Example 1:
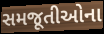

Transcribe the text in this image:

સમજૂતીઓના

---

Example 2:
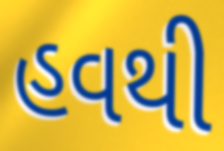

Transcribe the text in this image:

હવથી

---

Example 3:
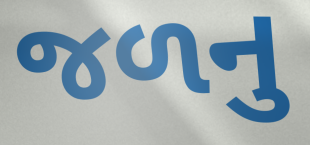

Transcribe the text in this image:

જળનુ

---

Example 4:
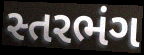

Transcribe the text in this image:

સ્તરભંગ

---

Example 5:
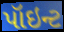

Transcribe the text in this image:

પૉઇન્ટ